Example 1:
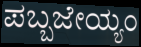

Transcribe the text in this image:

ಪಬ್ಬಜೇಯ್ಯಂ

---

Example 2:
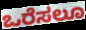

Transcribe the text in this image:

ಒರೆಸಲೂ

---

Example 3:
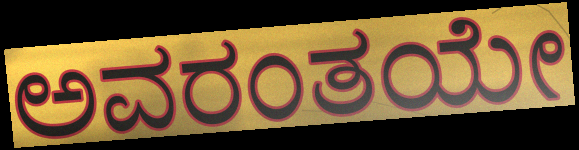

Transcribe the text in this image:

ಅವರಂತಯೇ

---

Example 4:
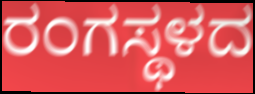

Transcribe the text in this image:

ರಂಗಸ್ಥಳದ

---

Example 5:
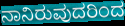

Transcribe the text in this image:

ನಾನಿರುವುದರಿಂದ